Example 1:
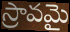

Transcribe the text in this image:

స్రావమై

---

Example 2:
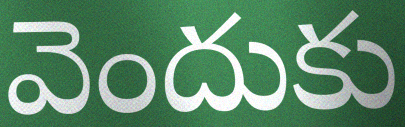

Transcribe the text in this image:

వెందుకు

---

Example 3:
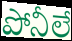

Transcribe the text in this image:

పోనీలే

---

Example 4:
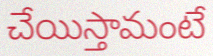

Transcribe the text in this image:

చేయిస్తామంటే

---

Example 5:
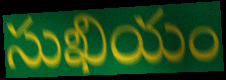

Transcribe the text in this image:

సుఖియం